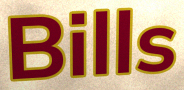
Bills